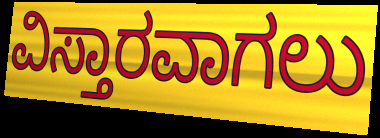
ವಿಸ್ತಾರವಾಗಲು